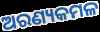
ଅରଣ୍ୟକମଳ